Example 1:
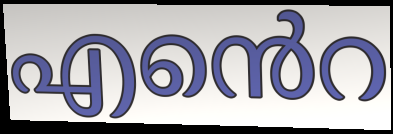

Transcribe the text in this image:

എൻെറ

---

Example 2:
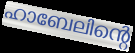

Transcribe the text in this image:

ഹാബേലിന്റെ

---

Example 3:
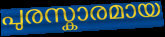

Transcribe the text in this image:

പുരസ്കാരമായ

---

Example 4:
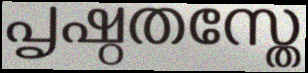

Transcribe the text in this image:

പൃഷ്ഠതസ്തേ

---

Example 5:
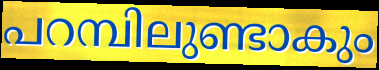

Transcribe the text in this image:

പറമ്പിലുണ്ടാകും